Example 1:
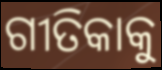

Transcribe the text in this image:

ଗୀତିକାକୁ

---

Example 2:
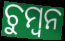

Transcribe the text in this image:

ଚୁମ୍ବନ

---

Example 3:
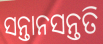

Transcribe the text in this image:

ସନ୍ତାନସନ୍ତତି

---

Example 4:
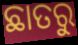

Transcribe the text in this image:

ଛାତରୁ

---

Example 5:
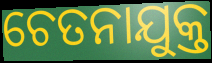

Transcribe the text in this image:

ଚେତନାଯୁକ୍ତ